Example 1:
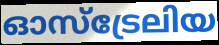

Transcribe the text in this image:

ഓസ്ട്രേലിയ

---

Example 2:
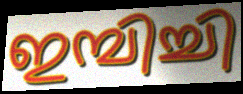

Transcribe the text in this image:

ഇമ്പിച്ചി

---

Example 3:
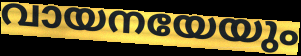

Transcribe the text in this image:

വായനയേയും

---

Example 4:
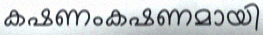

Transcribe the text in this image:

കഷണംകഷണമായി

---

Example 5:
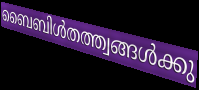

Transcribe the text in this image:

ബൈബിൾതത്ത്വങ്ങൾക്കു